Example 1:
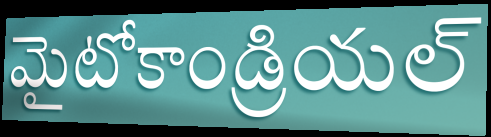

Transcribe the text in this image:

మైటోకాండ్రియల్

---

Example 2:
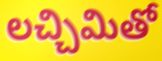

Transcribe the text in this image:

లచ్చిమితో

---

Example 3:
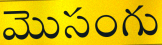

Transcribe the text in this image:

మొసంగు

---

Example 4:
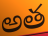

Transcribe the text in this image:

అత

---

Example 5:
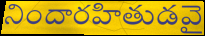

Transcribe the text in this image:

నిందారహితుడవై